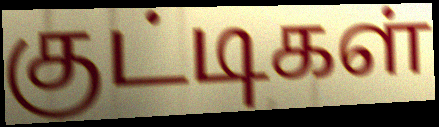
குட்டிகள்